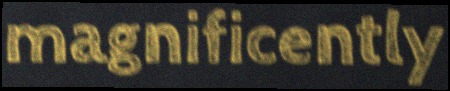
magnificently